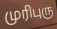
முரிபுரு